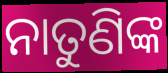
ନାତୁଣିଙ୍କ